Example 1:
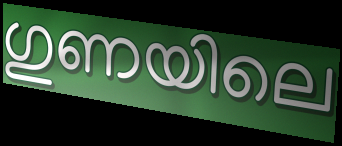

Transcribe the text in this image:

ഗുണയിലെ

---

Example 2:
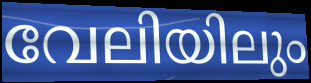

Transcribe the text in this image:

വേലിയിലും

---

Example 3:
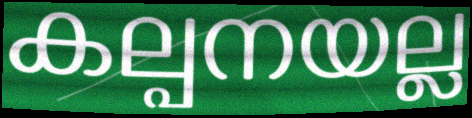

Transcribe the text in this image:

കല്പനയല്ല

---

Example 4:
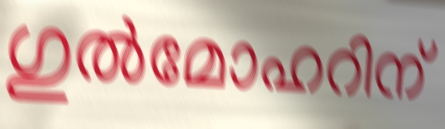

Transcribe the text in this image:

ഗുൽമോഹറിന്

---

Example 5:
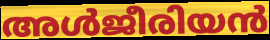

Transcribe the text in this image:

അൾജീരിയൻ